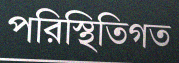
পরিস্থিতিগত